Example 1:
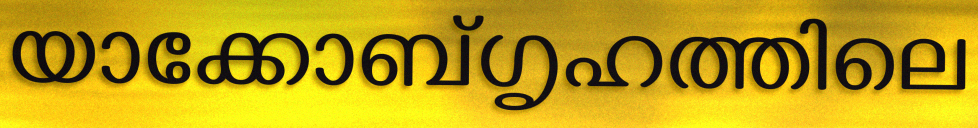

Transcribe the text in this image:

യാക്കോബ്ഗൃഹത്തിലെ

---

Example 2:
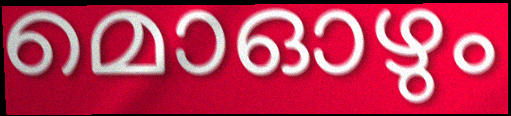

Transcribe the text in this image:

മൊഓഴും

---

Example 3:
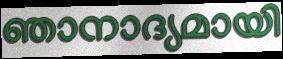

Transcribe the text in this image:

ഞാനാദ്യമായി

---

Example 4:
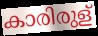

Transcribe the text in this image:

കാരിരുള്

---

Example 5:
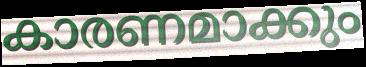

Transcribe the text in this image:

കാരണമാക്കും